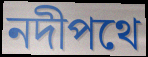
নদীপথে